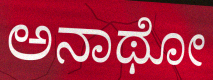
ಅನಾಥೋ